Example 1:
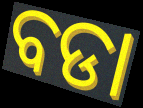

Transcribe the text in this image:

ବଡା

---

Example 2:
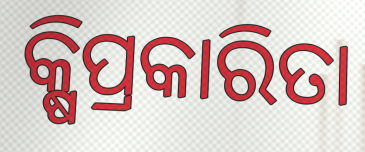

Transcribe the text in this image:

କ୍ଷିପ୍ରକାରିତା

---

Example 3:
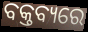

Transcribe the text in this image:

ବକ୍ତବ୍ୟରେ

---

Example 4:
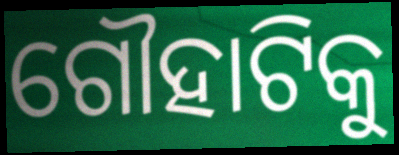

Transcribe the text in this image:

ଗୌହାଟିକୁ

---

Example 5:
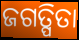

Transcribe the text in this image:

ଜଗତ୍ପିତା